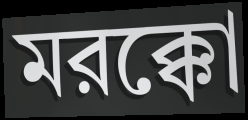
মরক্কো